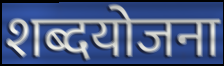
शब्दयोजना